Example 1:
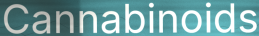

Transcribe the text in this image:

Cannabinoids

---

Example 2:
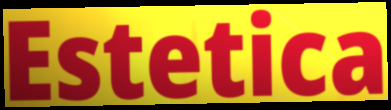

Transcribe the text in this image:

Estetica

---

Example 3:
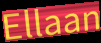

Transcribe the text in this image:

Ellaan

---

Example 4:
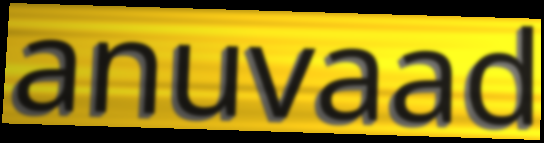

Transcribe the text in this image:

anuvaad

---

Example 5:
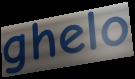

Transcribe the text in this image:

ghelo